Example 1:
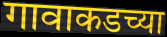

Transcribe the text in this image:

गावाकडच्या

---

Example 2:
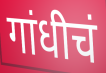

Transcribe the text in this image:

गांधीचं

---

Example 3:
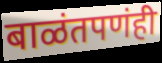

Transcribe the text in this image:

बाळंतपणंही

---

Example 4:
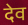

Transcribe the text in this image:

देव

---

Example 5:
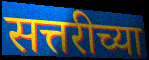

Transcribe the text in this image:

सत्तरीच्या